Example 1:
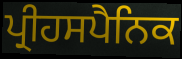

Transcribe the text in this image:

ਪ੍ਰੀਹਸਪੈਨਿਕ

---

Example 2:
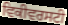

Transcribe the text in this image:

ਵਿਕੀਵਰਸਟੀ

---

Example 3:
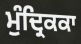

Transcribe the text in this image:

ਮੁੰਦ੍ਰਿਕਕਾ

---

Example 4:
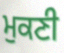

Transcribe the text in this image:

ਮੁਕਣੀ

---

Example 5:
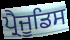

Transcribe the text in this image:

ਪ੍ਰੈਜੂਡਿਸ